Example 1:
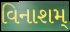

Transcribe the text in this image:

વિનાશમ્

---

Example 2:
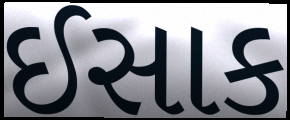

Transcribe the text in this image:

ઈસાક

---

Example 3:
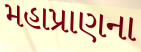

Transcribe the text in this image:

મહાપ્રાણના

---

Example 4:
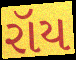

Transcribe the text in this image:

રૉય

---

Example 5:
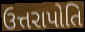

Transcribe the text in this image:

ઉત્તરાપોતિ